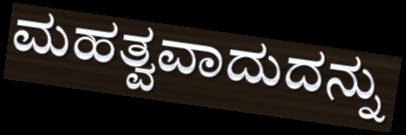
ಮಹತ್ವವಾದುದನ್ನು